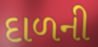
દાળની